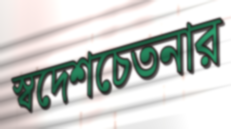
স্বদেশচেতনার